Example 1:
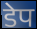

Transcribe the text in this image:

डेप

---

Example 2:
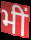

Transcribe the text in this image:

भीं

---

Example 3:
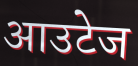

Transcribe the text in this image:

आउटेज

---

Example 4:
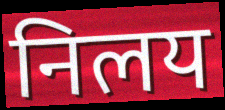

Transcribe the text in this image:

निलय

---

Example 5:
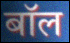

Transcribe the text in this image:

बॉल